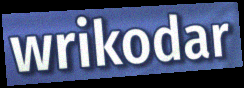
wrikodar